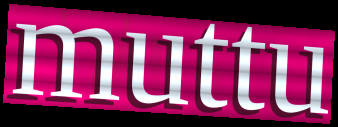
muttu